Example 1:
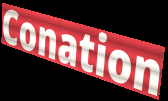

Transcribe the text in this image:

Conation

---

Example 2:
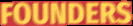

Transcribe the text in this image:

FOUNDERS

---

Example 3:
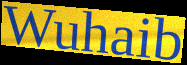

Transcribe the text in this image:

Wuhaib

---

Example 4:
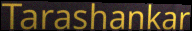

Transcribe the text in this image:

Tarashankar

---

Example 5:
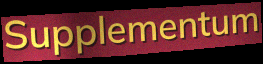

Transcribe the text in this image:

Supplementum